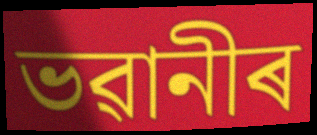
ভৱানীৰ